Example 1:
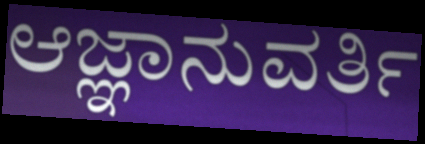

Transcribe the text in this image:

ಆಜ್ಞಾನುವರ್ತಿ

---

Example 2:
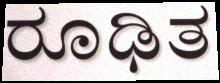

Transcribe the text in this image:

ರೂಢಿತ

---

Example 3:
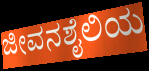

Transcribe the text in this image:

ಜೀವನಶೈಲಿಯ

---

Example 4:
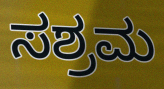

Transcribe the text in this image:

ಸಶ್ರಮ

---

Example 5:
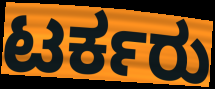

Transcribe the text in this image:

ಟರ್ಕರು